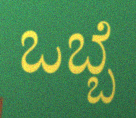
ಒಬ್ಬೆ